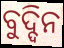
ବୁଦ୍ଦିନ